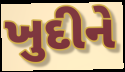
ખુદીને